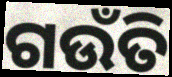
ଗଉଁତି